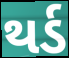
થર્ડ